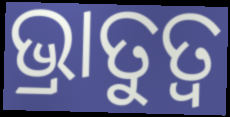
ଭ୍ରାତୁତ୍ଵ